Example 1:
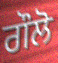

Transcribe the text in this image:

ਗੌਲੋ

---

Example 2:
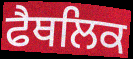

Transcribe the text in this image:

ਫੈਥਲਿਕ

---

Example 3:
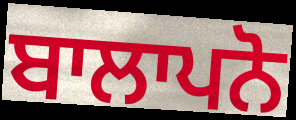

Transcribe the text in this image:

ਬਾਲਾਪਨੋ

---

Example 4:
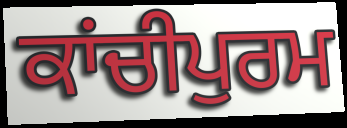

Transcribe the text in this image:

ਕਾਂਚੀਪੁਰਮ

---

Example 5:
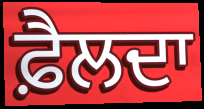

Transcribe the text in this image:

ਫ਼ੈਲਦਾ